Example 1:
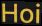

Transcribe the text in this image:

Hoi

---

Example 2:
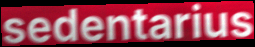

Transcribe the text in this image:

sedentarius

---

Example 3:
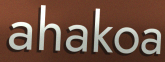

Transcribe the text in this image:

ahakoa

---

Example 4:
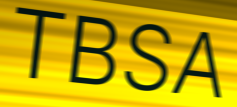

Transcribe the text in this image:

TBSA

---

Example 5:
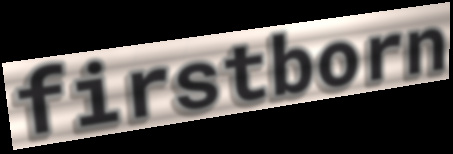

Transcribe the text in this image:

firstborn